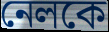
নেলকে